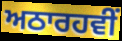
ਅਠਾਰਹਵੀਂ